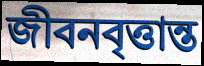
জীবনবৃত্তান্ত